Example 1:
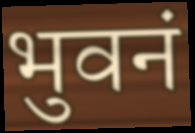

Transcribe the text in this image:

भुवनं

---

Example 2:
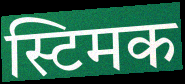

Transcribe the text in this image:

स्टिमक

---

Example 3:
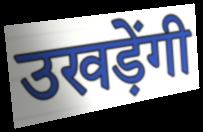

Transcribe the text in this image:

उखड़ेंगी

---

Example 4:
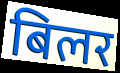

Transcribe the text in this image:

बिलर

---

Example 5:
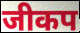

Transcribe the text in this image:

जीकप